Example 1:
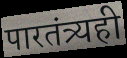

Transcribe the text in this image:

पारतंत्र्यही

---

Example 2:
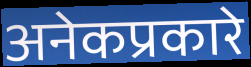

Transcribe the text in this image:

अनेकप्रकारे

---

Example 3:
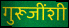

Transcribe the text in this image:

गुरूजींशी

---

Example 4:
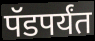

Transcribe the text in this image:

पॅडपर्यंत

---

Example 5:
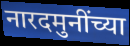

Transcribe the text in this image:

नारदमुनींच्या